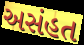
અસંહત